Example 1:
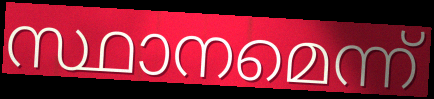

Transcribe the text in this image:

സ്ഥാനമെന്ന്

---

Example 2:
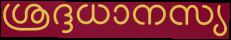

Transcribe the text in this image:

ശ്രദ്ദധാനസ്യ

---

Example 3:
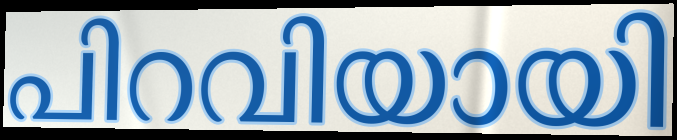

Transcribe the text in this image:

പിറവിയായി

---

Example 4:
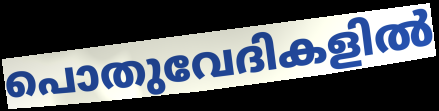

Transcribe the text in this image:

പൊതുവേദികളിൽ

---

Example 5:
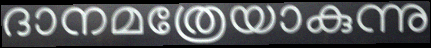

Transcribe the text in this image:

ദാനമത്രേയാകുന്നു